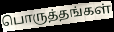
பொருத்தங்கள்